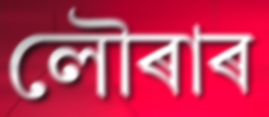
লৌৰাৰ